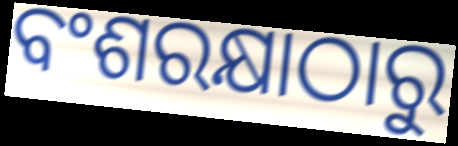
ବଂଶରକ୍ଷାଠାରୁ